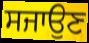
ਸਜਾਉਣ